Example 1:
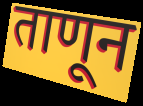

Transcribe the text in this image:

ताणून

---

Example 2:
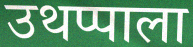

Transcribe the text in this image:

उथप्पाला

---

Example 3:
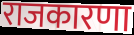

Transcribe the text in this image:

राजकारणा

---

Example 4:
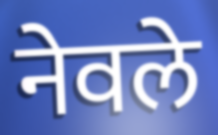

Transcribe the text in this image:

नेवले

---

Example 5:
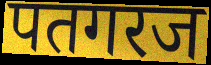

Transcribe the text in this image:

पतगरज